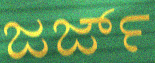
ಜರ್ಜ್